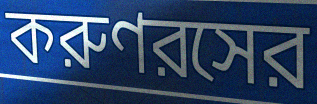
করুণরসের